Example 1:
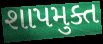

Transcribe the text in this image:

શાપમુક્ત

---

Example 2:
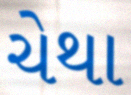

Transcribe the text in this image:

ચેથા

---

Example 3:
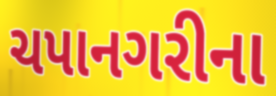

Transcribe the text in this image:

ચપાનગરીના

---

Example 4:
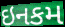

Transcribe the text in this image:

ઇનકમ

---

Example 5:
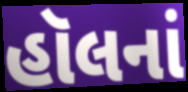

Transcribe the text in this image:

હૉલનાં